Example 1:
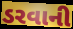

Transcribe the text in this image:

ડરવાની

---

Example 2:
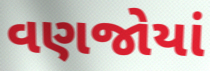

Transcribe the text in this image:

વણજોયાં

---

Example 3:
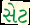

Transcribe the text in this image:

સેટ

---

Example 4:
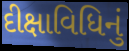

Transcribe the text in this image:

દીક્ષાવિધિનું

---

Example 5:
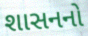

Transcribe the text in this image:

શાસનનો